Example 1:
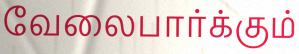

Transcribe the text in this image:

வேலைபார்க்கும்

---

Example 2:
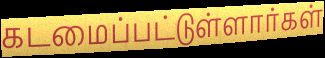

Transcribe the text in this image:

கடமைப்பட்டுள்ளார்கள்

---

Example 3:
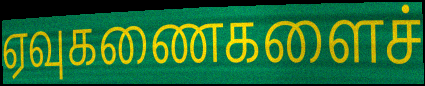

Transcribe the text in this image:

ஏவுகணைகளைச்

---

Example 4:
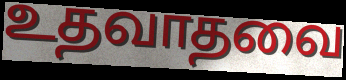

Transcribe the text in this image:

உதவாதவை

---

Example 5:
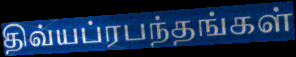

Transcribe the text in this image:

திவ்யப்ரபந்தங்கள்